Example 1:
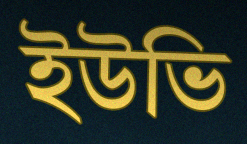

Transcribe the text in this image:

ইউভি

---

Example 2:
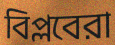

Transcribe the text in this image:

বিপ্লবেরা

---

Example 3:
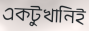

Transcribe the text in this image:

একটুখানিই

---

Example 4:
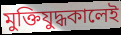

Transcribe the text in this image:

মুক্তিযুদ্ধকালেই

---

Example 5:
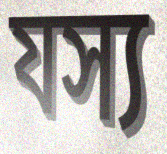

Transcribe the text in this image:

যস্য